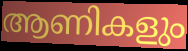
ആണികളും